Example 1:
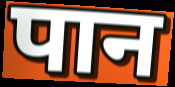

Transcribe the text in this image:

पान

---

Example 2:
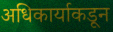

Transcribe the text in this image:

अधिकार्याकडून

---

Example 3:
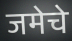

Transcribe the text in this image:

जमेचे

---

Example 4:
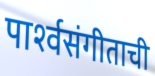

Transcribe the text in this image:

पार्श्वसंगीताची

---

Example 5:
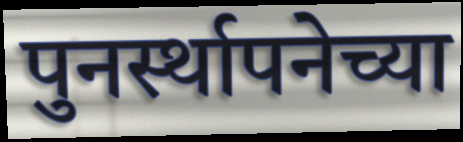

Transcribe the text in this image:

पुनर्स्थापनेच्या